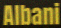
Albani